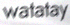
watatay